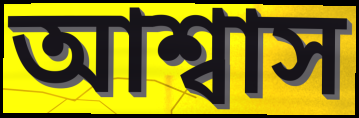
আশ্বাস